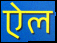
ऐल